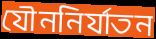
যৌননির্যাতন